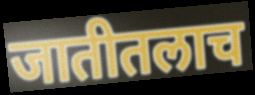
जातीतलाच